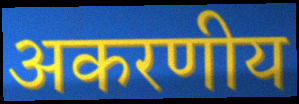
अकरणीय